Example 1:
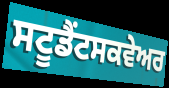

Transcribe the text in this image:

ਸਟੂਡੈਂਟਸਕਵੇਅਰ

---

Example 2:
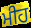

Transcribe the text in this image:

ਮੀਹ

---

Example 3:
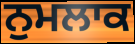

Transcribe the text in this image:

ਨੁਮਲਾਕ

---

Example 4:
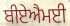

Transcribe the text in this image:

ਬੀਏਐਮਈ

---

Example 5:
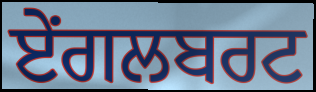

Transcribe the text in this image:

ਏਂਗਲਬਰਟ